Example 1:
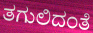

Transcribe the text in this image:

ತಗುಲಿದಂತೆ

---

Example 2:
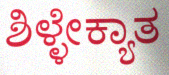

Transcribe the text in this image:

ಶಿಳ್ಳೇಕ್ಯಾತ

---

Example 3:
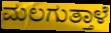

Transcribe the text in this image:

ಮಲಗುತ್ತಾಳೆ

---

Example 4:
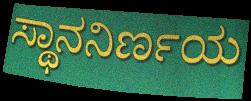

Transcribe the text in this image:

ಸ್ಥಾನನಿರ್ಣಯ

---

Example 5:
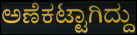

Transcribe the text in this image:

ಅಣೆಕಟ್ಟಾಗಿದ್ದು